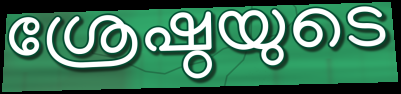
ശ്രേഷ്ഠയുടെ